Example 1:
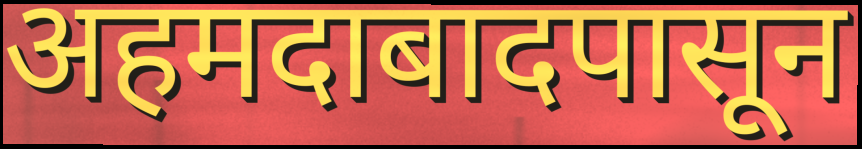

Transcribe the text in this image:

अहमदाबादपासून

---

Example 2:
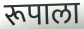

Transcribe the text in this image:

रूपाला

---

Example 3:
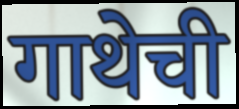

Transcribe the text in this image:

गाथेची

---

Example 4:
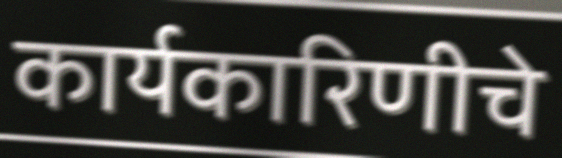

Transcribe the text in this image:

कार्यकारिणीचे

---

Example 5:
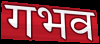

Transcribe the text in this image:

गभव